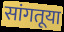
सांगतूया